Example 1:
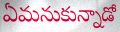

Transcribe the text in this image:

ఏమనుకున్నాడో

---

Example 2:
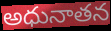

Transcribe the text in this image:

అధునాతన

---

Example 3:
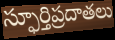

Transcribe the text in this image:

స్ఫూర్తిప్రదాతలు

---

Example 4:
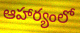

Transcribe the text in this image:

ఆహార్యంలో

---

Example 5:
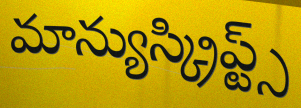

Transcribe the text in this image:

మాన్యుస్క్రిప్ట్స్